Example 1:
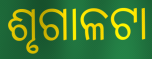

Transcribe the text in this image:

ଶୃଗାଳଟା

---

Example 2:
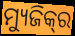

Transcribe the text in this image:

ମ୍ୟୁଜିକ୍‌ର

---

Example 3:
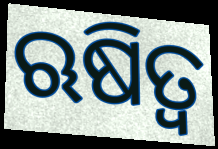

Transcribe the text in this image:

ଋଷିତ୍ୱ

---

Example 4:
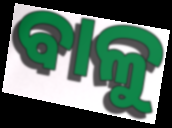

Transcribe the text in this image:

ବାଳୁ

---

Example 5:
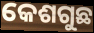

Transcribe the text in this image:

କେଶଗୁଛ